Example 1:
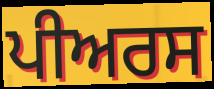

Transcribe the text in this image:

ਪੀਅਰਸ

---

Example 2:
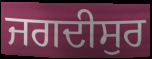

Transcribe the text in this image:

ਜਗਦੀਸੁਰ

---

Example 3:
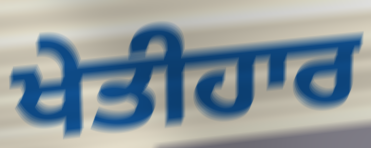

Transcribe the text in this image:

ਖੇਤੀਹਾਰ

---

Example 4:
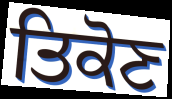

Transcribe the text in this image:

ਤਿਕੋਣ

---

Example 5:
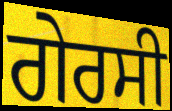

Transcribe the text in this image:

ਗੇਰਸੀ